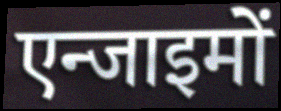
एन्जाइमों